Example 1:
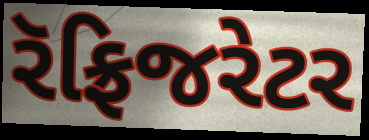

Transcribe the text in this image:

રૅફ્રિજરેટર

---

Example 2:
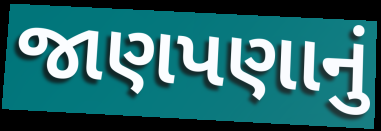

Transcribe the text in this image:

જાણપણાનું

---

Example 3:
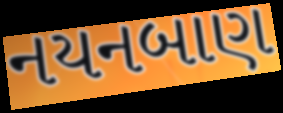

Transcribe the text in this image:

નયનબાણ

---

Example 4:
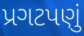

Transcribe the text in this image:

પ્રગટપણું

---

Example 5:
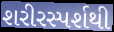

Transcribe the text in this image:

શરીરસ્પર્શથી